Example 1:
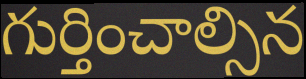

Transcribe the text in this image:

గుర్తించాల్సిన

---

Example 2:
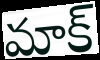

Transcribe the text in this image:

మాక్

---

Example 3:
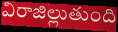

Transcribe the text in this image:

విరాజిల్లుతుంది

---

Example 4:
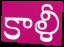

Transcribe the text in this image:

కాళీ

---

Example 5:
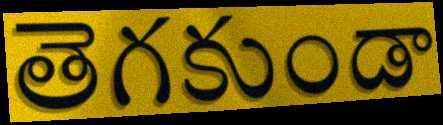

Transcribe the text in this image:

తెగకుండా